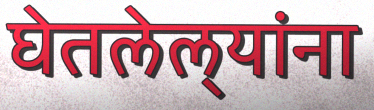
घेतलेल्यांना